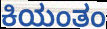
ಕಿಯಂತಂ